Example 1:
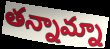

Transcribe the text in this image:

తన్నామ్నా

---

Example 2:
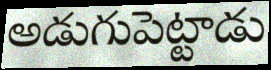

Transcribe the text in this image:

అడుగుపెట్టాడు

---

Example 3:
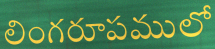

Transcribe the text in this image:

లింగరూపములో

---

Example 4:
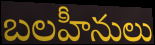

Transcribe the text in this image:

బలహీనులు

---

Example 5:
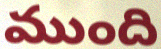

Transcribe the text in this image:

ముంది